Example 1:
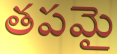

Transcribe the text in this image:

తపమై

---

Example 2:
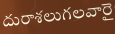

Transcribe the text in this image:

దురాశలుగలవారై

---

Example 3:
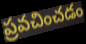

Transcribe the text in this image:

ప్రవచించడం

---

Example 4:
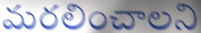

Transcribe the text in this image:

మరలించాలని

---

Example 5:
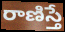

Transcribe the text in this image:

రాణిస్తే